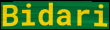
Bidari